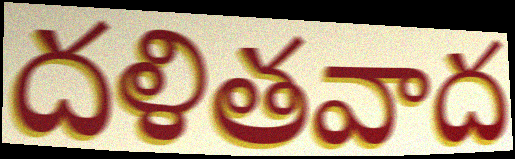
దళితవాద